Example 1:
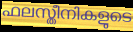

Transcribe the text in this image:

ഫലസ്തീനികളുടെ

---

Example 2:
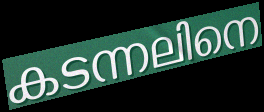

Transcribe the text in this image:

കടന്നലിനെ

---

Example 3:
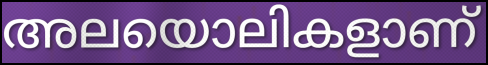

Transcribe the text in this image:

അലയൊലികളാണ്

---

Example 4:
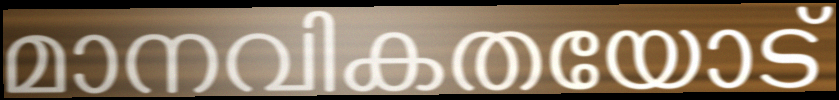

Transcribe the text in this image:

മാനവികതയോട്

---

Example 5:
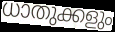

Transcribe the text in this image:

ധാതുക്കളും